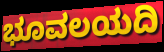
ಭೂವಲಯದಿ